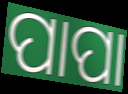
ପାପା